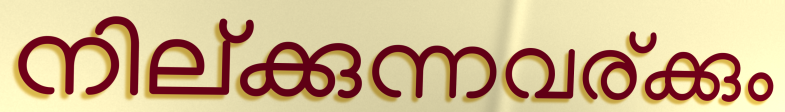
നില്ക്കുന്നവര്ക്കും